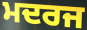
ਮਦਰਜ